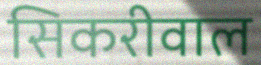
सिकरीवाल